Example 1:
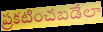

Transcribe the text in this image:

ప్రకటించబడేలా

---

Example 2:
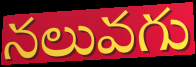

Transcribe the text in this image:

నలువగు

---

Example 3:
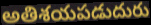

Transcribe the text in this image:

అతిశయపడుదురు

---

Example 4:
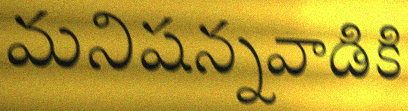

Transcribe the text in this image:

మనిషన్నవాడికి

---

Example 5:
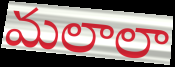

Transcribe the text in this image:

మలాలా